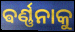
ଵର୍ଣ୍ଣନାକୁ